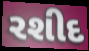
રશીદ